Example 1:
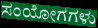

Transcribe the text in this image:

ಸಂಯೋಗಗಳು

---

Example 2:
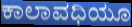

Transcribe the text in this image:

ಕಾಲಾವಧಿಯೂ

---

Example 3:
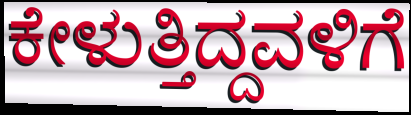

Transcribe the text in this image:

ಕೇಳುತ್ತಿದ್ದವಳಿಗೆ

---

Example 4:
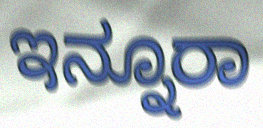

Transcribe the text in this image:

ಇನ್ನೂರಾ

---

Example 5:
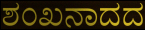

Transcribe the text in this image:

ಶಂಖನಾದದ